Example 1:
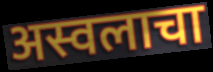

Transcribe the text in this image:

अस्वलाचा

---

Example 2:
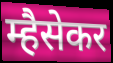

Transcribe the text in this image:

म्हैसेकर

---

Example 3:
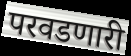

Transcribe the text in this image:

परवडणारी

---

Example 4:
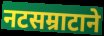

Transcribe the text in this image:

नटसम्राटाने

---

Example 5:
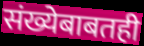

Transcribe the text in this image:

संख्येबाबतही